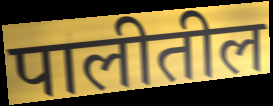
पालीतील